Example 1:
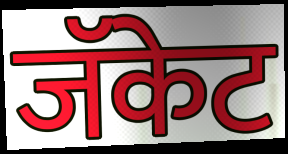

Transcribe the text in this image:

जॅकेट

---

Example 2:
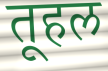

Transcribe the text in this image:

तूहल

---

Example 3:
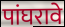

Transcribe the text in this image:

पांघरावे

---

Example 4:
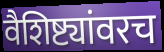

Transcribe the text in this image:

वैशिष्ट्यांवरच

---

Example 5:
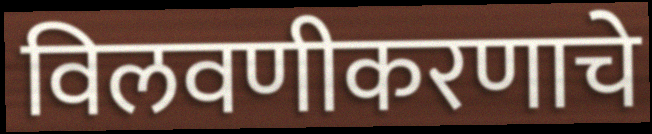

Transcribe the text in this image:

विलवणीकरणाचे